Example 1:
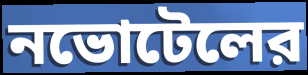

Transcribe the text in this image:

নভোটেলের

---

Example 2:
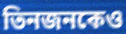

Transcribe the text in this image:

তিনজনকেও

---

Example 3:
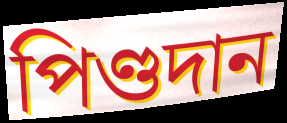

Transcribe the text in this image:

পিণ্ডদান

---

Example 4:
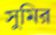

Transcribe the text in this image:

সুমির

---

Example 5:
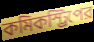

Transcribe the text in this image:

কমিকস্ট্রিপের